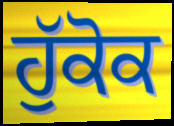
ਹੁੱਕੋਕ